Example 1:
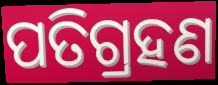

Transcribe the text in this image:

ପତିଗ୍ରହଣ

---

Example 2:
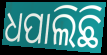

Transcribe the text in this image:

ଧପାଲିଛି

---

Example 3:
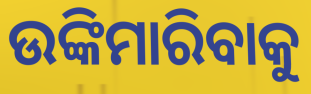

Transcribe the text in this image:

ଉଙ୍କିମାରିବାକୁ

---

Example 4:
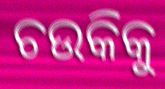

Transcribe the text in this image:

ଚଉକିକୁ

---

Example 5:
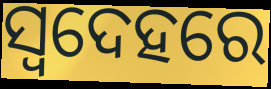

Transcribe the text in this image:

ସ୍ଵଦେହରେ